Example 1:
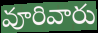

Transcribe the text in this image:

వూరివారు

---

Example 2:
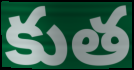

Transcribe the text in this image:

కుత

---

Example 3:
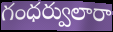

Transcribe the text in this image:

గంధర్వులారా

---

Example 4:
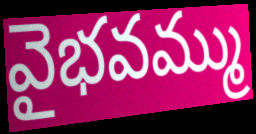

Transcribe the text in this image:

వైభవమ్ము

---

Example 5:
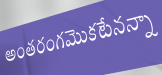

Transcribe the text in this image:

అంతరంగమొకటేనన్నా